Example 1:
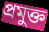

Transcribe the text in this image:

প্রমুক্ত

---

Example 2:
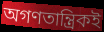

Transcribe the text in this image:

অগণতান্ত্রিকই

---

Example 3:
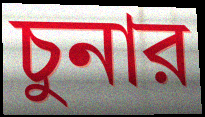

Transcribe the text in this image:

চুনার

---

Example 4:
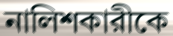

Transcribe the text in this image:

নালিশকারীকে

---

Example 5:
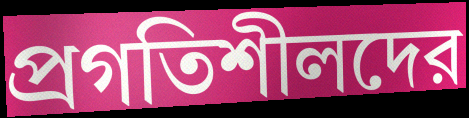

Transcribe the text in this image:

প্রগতিশীলদের